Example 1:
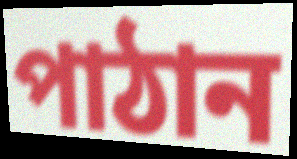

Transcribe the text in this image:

পাঠান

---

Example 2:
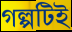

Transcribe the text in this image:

গল্পটিই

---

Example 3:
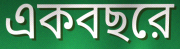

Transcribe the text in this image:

একবছরে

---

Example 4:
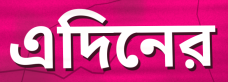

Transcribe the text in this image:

এদিনের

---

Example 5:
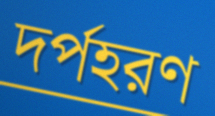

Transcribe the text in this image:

দর্পহরণ